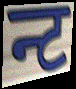
न्ट